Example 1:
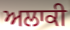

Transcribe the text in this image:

ਅਲਾਕੀ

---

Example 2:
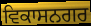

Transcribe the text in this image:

ਵਿਕਾਸਨਗਰ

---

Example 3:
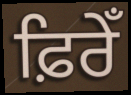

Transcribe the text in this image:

ਫ਼ਿਰੇਁ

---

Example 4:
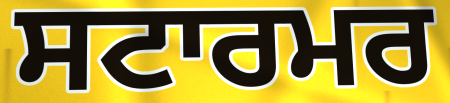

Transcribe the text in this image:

ਸਟਾਰਮਰ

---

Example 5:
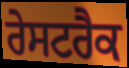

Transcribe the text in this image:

ਰੇਸਟਰੈਕ